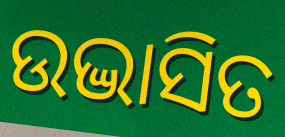
ଉଦ୍ଭାସିତ